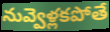
నువ్వెళ్లకపోతే